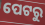
ପେଟରୁ